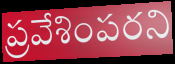
ప్రవేశింపరని